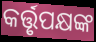
କର୍ତ୍ତୃପକ୍ଷଙ୍କ